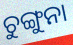
ଚୁଙ୍ଗୁନା